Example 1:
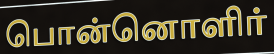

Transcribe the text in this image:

பொன்னொளிர்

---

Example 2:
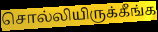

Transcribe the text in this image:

சொல்லியிருக்கீங்க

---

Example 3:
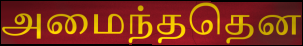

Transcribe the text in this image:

அமைந்ததென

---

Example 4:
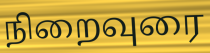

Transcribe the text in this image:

நிறைவுரை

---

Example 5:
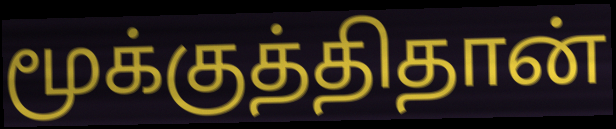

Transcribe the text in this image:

மூக்குத்திதான்